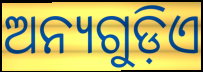
ଅନ୍ୟଗୁଡ଼ିଏ